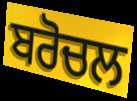
ਬਰੋਚਲ